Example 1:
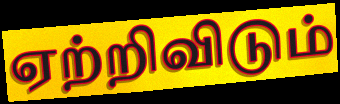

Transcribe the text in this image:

ஏற்றிவிடும்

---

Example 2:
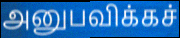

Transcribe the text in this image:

அனுபவிக்கச்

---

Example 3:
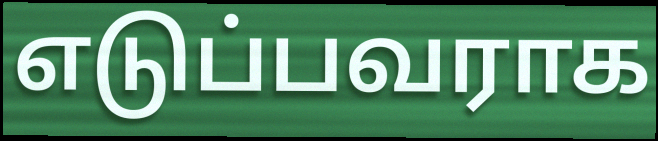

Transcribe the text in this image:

எடுப்பவராக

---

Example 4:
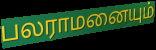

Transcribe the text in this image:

பலராமனையும்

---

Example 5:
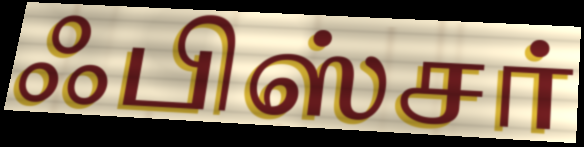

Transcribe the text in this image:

ஃபிஸ்சர்